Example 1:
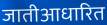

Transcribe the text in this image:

जातीआधारित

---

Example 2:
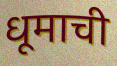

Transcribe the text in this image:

धूमाची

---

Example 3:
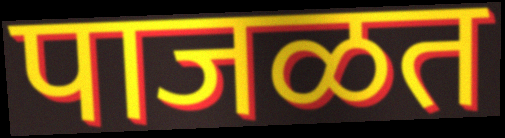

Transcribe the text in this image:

पाजळत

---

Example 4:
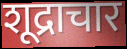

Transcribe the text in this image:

शूद्राचार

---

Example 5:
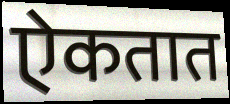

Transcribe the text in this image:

ऐकतात